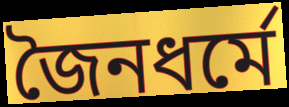
জৈনধর্মে